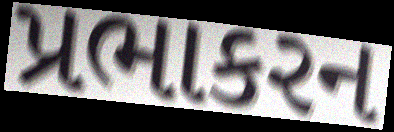
પ્રભાકરન